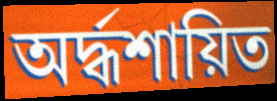
অর্দ্ধশায়িত